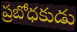
ప్రబోధకుడు